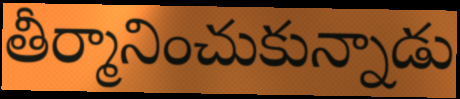
తీర్మానించుకున్నాడు